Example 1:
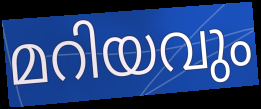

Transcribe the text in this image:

മറിയവും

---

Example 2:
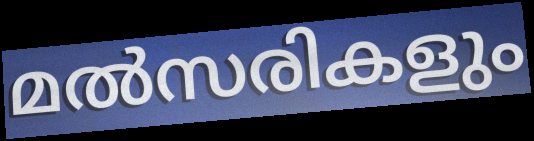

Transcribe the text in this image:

മൽസരികളും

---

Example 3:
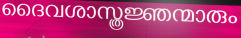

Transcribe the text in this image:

ദൈവശാസ്ത്രജ്ഞന്മാരും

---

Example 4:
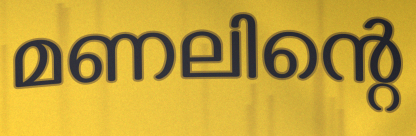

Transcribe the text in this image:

മണലിന്റെ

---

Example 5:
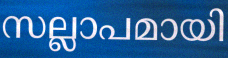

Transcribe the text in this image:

സല്ലാപമായി